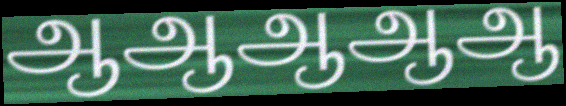
ஆஆஆஆஆ